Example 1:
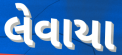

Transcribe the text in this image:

લેવાયા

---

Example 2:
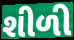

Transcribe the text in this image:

શીળી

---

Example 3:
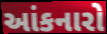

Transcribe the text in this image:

આંકનારો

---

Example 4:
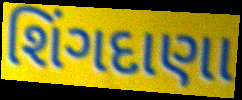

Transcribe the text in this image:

શિંગદાણા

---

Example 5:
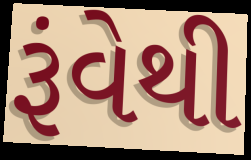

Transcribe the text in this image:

રૂંવેથી